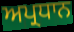
ਅਪ੍ਰਧਾਨ